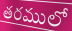
తరములో